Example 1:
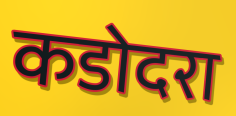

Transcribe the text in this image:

कडोदरा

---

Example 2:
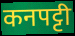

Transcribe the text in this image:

कनपट्टी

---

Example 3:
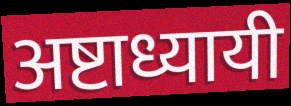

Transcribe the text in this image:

अष्टाध्यायी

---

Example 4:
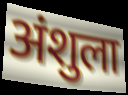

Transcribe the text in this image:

अंशुला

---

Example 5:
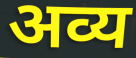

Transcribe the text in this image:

अव्य